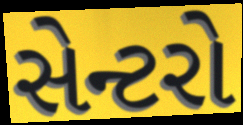
સેન્ટરો